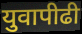
युवापीढी